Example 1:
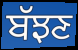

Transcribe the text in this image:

ਬੱਝਣ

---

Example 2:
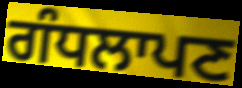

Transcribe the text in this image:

ਗੰਧਲਾਪਣ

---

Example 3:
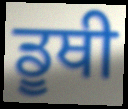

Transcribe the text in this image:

ਡੂਥੀ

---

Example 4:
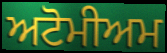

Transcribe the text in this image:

ਅਟੋਮੀਅਮ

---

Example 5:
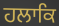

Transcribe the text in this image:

ਹਲਾਕਿ